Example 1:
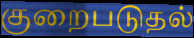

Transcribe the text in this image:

குறைபடுதல்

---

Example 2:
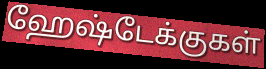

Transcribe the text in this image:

ஹேஷ்டேக்குகள்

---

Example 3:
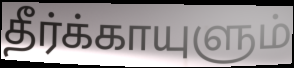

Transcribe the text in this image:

தீர்க்காயுளும்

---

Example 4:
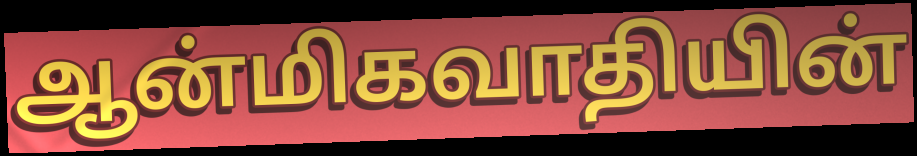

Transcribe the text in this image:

ஆன்மிகவாதியின்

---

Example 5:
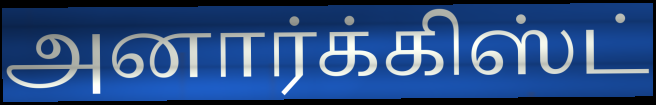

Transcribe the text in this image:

அனார்க்கிஸ்ட்